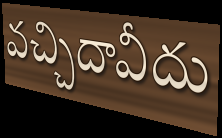
వచ్చిదావీదు